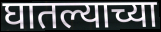
घातल्याच्या